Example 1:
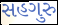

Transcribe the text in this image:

સહગુરુ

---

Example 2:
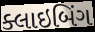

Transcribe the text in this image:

ક્લાઇબિંગ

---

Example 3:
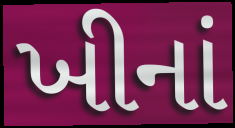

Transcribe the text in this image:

ખીનાં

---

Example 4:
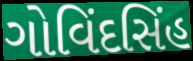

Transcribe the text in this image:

ગોવિંદસિંહ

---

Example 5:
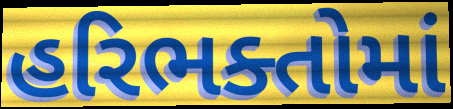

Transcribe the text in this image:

હરિભક્તોમાં